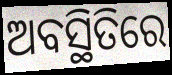
ଅବସ୍ଥିତିରେ